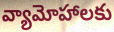
వ్యామోహాలకు